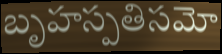
బృహస్పతిసమో